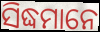
ସିଦ୍ଧମାନେ